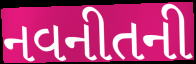
નવનીતની